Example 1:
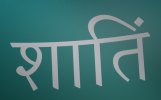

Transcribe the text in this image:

शातिं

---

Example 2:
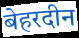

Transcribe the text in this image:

बेहरदीन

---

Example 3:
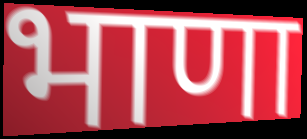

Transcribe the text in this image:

भाणा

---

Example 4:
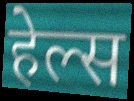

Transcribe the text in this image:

हेल्स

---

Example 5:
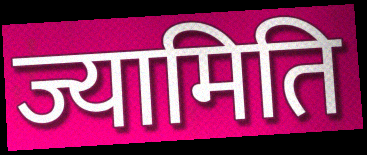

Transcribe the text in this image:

ज्यामिति